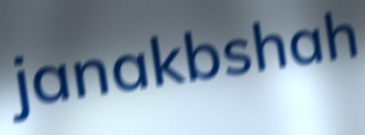
janakbshah